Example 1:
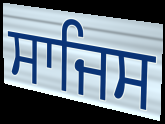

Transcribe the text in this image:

ਸਾਜਿਸ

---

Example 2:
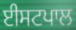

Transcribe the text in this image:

ਈਸਟਪਾਲ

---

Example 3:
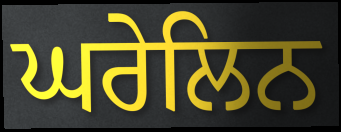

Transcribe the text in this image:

ਘਰੇਲਿਨ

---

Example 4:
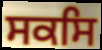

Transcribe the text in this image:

ਸਕਸਿ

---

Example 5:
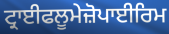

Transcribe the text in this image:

ਟ੍ਰਾਈਫਲੂਮੇਜ਼ੋਪਾਈਰਿਮ